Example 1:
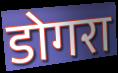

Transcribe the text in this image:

डोगरा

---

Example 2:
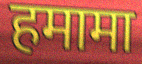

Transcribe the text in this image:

हमामा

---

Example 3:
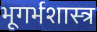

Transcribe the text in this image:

भूगर्भशास्त्र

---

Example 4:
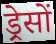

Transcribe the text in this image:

ड्रेसों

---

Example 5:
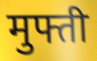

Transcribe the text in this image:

मुफ्ती